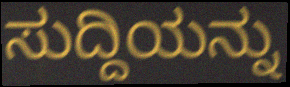
ಸುದ್ದಿಯನ್ನು